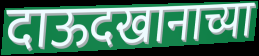
दाऊदखानाच्या